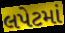
લપેટમાં